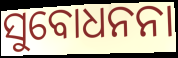
ସୁବୋଧନନା